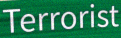
Terrorist